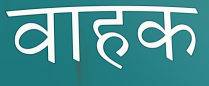
वाहक